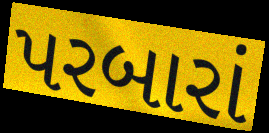
પરબારાં